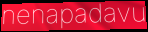
nenapadavu